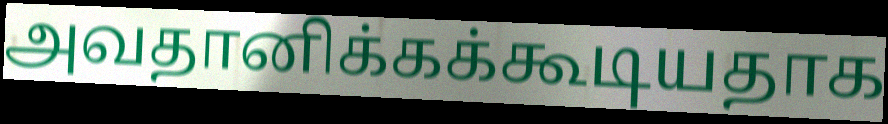
அவதானிக்கக்கூடியதாக